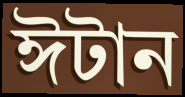
ঈটান